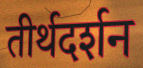
तीर्थदर्शन